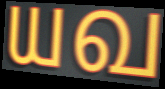
யவ